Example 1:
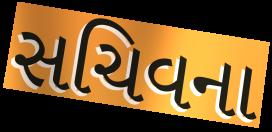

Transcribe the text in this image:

સચિવના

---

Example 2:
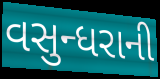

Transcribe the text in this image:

વસુન્ધરાની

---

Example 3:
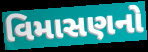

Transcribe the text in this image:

વિમાસણનો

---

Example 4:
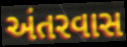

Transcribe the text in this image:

અંતરવાસ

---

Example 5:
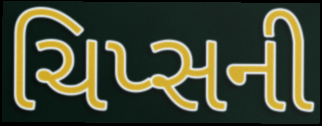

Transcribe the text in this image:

ચિપ્સની